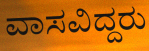
ವಾಸವಿದ್ದರು